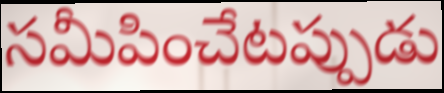
సమీపించేటప్పుడు